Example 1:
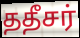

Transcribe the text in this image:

ததீசர்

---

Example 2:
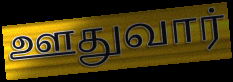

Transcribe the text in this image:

ஊதுவார்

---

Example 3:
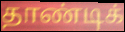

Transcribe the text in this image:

தாண்டிக்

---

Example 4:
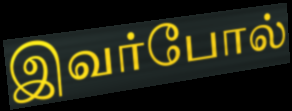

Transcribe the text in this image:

இவர்போல்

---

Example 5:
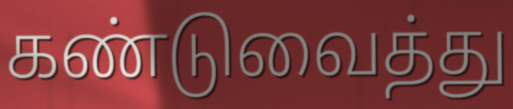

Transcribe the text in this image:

கண்டுவைத்து